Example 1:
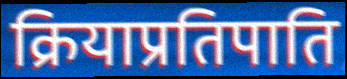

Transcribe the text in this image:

क्रियाप्रतिपाति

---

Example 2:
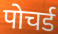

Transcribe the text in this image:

पोचर्ड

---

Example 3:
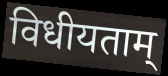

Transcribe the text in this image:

विधीयताम्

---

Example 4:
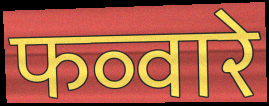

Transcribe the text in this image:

फव्‍वारे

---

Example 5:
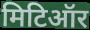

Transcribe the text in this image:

मिटिऑर